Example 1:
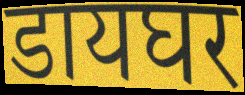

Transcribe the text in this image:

डायघर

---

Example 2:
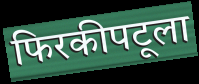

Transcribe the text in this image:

फिरकीपटूला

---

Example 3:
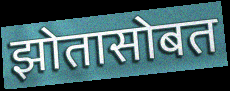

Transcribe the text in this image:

झोतासोबत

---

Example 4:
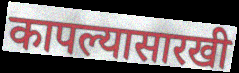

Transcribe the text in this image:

कापल्यासारखी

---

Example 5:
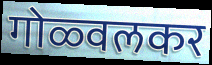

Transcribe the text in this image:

गोळ्वलकर